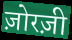
ज़ोरज़ी